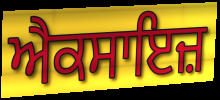
ਐਕਸਾਇਜ਼